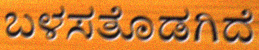
ಬಳಸತೊಡಗಿದೆ